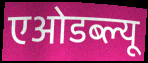
एओडब्ल्यू